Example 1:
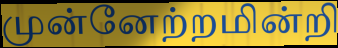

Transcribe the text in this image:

முன்னேற்றமின்றி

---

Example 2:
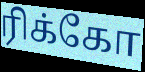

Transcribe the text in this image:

ரிக்கோ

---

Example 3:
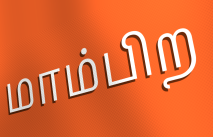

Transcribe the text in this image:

மாம்பிற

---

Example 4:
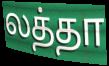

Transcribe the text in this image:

லத்தா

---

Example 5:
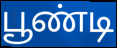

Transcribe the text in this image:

பூண்டி